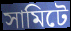
সামিটে